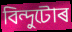
বিন্দুটোৰ